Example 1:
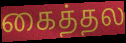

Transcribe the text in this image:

கைத்தல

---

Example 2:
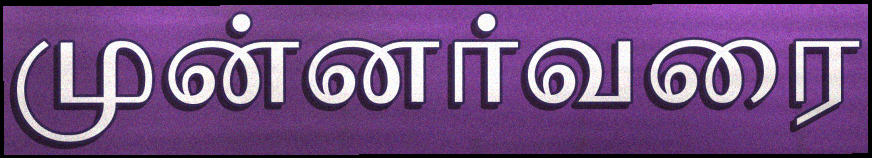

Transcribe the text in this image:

முன்னர்வரை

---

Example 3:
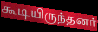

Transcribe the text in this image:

கூடியிருந்தனர்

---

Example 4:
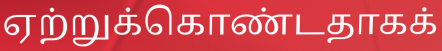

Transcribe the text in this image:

ஏற்றுக்கொண்டதாகக்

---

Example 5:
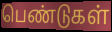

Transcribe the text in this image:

பெண்டுகள்